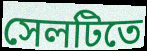
সেলটিতে